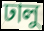
ঢালু